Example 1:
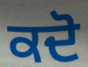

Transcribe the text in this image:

ਕਦੋ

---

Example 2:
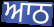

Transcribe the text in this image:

ਆਠ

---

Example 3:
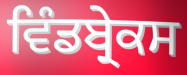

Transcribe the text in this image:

ਵਿੰਡਬ੍ਰੇਕਸ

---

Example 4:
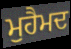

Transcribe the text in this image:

ਮੁਹੈਮਦ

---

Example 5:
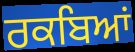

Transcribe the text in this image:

ਰਕਬਿਆਂ